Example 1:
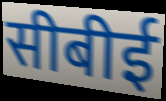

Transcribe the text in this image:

सीबीई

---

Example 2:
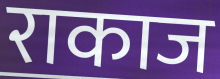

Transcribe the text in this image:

राकाज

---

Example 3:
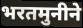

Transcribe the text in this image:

भरतमुनीने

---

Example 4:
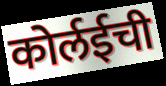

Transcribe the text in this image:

कोर्लईची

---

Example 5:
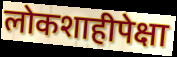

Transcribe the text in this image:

लोकशाहीपेक्षा